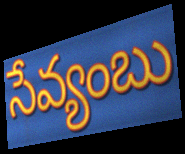
సేవ్యంబు